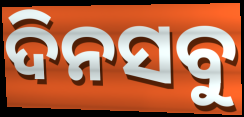
ଦିନସବୁ